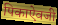
पिकाऐवजी